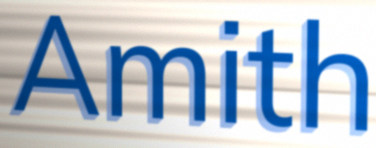
Amith